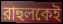
রাহুলকেই